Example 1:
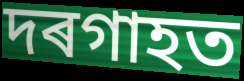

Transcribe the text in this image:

দৰগাহত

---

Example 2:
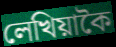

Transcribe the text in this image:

লেখিয়াকৈ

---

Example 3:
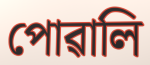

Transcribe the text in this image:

পোৱালি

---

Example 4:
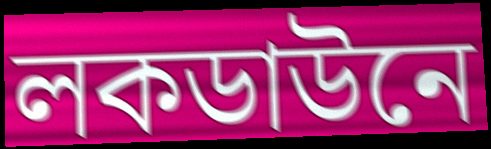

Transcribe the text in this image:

লকডাউনে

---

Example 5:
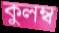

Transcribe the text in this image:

কুলম্ব